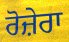
ਰੋਜ਼ੇਰਾ